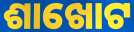
ଶାଖୋଟ